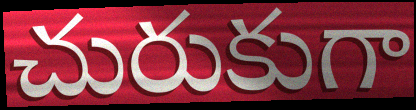
చురుకుగా